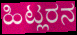
ಹಿಟ್ಲರನ